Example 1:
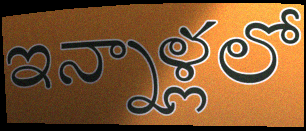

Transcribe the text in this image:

ఇన్నాళ్లలో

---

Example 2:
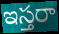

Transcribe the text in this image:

ఇస్తరా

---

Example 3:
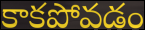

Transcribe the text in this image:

కాకపోవడం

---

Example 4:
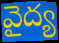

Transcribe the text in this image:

వైద్య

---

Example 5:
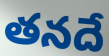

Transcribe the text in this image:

తనదే